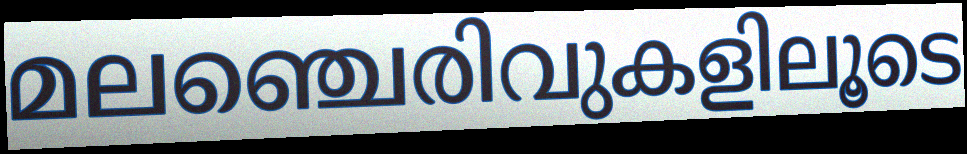
മലഞ്ചെരിവുകളിലൂടെ